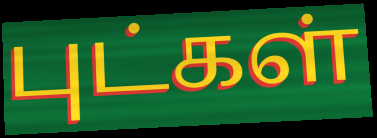
புட்கள்